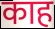
काह